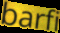
barfi